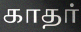
காதர்